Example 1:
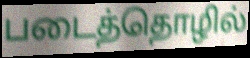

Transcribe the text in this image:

படைத்தொழில்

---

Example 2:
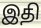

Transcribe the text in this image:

இதி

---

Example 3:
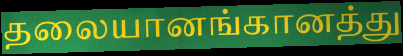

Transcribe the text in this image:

தலையானங்கானத்து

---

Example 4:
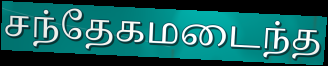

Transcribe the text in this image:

சந்தேகமடைந்த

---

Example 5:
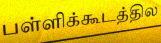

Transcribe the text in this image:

பள்ளிக்கூடத்தில